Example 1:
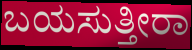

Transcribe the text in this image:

ಬಯಸುತ್ತೀರಾ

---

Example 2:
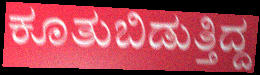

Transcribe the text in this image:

ಕೂತುಬಿಡುತ್ತಿದ್ದ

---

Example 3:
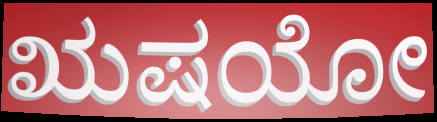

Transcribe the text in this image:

ಋಷಯೋ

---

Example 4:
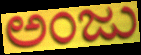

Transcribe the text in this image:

ಅಂಜು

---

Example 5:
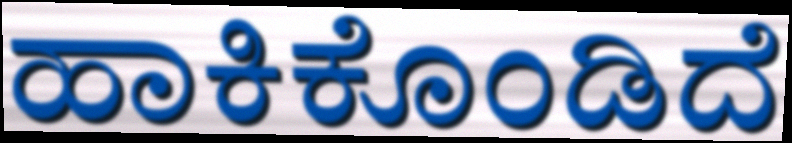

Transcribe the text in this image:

ಹಾಕಿಕೊಂಡಿದೆ